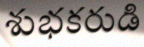
శుభకరుడి